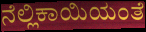
ನೆಲ್ಲಿಕಾಯಿಯಂತೆ